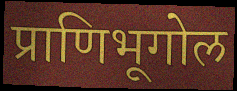
प्राणिभूगोल